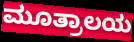
ಮೂತ್ರಾಲಯ